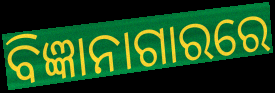
ବିଜ୍ଞାନାଗାରରେ